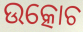
ଉତ୍କୋଚ